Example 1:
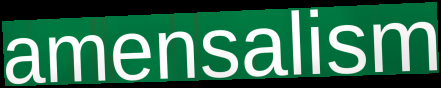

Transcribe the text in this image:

amensalism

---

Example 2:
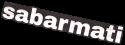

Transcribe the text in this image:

sabarmati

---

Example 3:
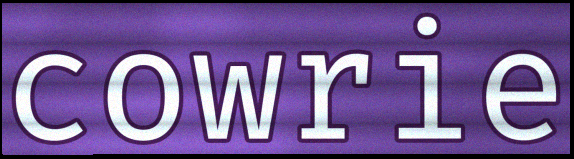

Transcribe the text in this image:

cowrie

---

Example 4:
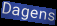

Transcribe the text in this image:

Dagens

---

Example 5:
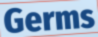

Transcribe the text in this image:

Germs